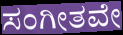
ಸಂಗೀತವೇ